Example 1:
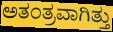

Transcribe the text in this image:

ಅತಂತ್ರವಾಗಿತ್ತು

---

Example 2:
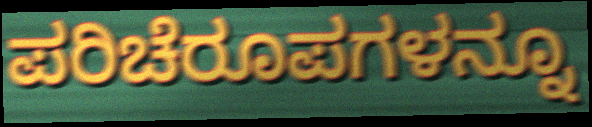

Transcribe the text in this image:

ಪರಿಚೆರೂಪಗಳನ್ನೂ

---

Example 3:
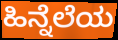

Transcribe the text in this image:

ಹಿನ್ನೆಲೆಯ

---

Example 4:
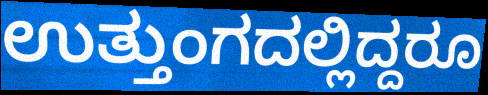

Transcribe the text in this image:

ಉತ್ತುಂಗದಲ್ಲಿದ್ದರೂ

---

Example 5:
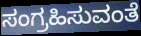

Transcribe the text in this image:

ಸಂಗ್ರಹಿಸುವಂತೆ